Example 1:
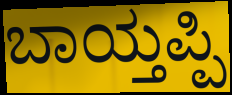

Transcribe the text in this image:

ಬಾಯ್ತಪ್ಪಿ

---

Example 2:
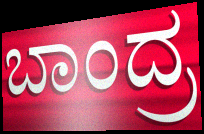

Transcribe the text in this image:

ಬಾಂದ್ರ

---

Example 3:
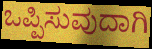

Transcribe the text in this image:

ಒಪ್ಪಿಸುವುದಾಗಿ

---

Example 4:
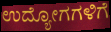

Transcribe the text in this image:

ಉದ್ಯೋಗಗಳಿಗೆ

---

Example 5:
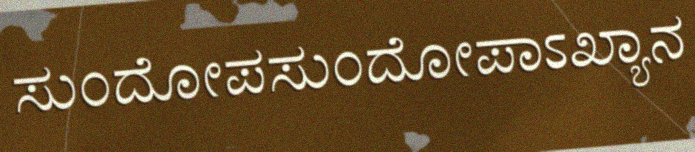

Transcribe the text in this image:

ಸುಂದೋಪಸುಂದೋಪಾಽಖ್ಯಾನ